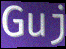
Guj